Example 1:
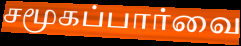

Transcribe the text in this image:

சமூகப்பார்வை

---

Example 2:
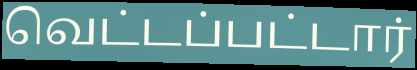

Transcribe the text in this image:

வெட்டப்பட்டார்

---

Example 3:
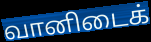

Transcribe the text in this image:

வானிடைக்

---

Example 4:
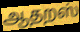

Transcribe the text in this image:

ஆதறஸ்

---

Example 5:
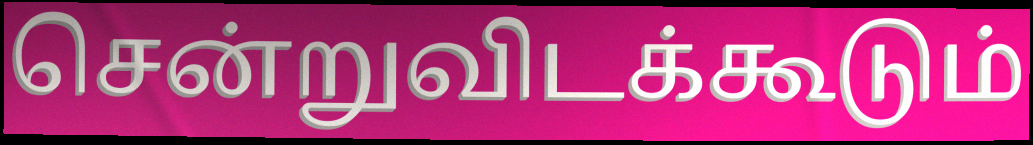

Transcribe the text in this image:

சென்றுவிடக்கூடும்